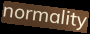
normality